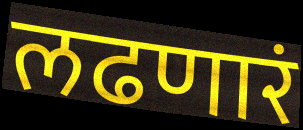
लढणारं